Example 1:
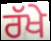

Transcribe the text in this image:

ਰੱਖੇ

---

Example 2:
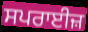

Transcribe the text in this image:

ਸਪਰਾਈਜ਼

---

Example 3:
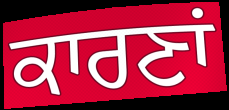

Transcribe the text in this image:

ਕਾਰਣਾਂ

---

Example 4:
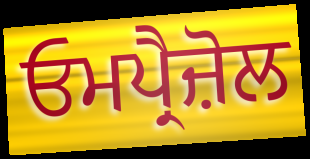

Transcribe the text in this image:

ਓਮਪ੍ਰੈਜ਼ੋਲ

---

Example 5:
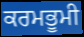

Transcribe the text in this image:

ਕਰਮਭੂਮੀ